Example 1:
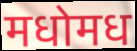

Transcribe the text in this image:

मधोमध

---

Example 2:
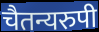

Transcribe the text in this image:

चैतन्यरुपी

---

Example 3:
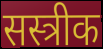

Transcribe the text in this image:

सस्त्रीक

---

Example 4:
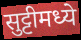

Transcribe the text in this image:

सुट्टीमध्ये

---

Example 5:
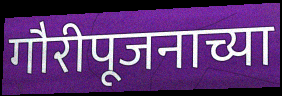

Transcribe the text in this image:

गौरीपूजनाच्या